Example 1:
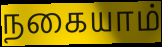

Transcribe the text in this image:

நகையாம்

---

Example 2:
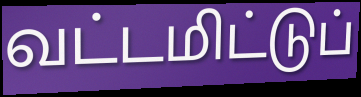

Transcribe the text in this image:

வட்டமிட்டுப்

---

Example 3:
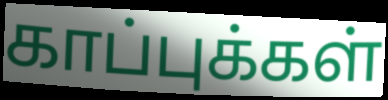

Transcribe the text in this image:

காப்புக்கள்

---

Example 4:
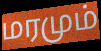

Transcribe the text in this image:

மரமும்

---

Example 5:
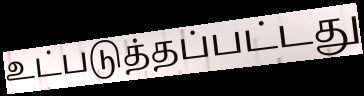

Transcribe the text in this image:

உட்படுத்தப்பட்டது